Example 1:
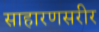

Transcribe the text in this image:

साहारणसरीर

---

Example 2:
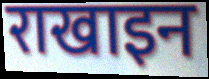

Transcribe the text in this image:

राखाइन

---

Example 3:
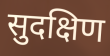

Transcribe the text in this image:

सुदक्षिण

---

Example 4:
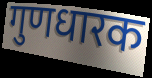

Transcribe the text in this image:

गुणधारक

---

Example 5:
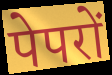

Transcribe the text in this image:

पेपरों